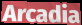
Arcadia